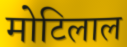
मोटिलाल